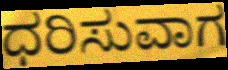
ಧರಿಸುವಾಗ